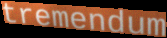
tremendum